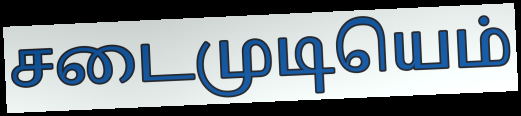
சடைமுடியெம்